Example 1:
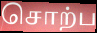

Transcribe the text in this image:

சொற்ப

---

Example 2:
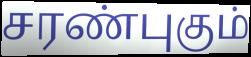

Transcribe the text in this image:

சரண்புகும்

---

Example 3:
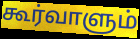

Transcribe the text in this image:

கூர்வாளும்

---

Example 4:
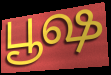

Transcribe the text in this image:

பூஷ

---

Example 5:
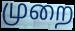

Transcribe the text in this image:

முறை